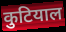
कुटियाल